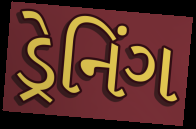
ડ્રેનિંગ